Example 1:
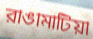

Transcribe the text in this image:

রাঙামাটিয়া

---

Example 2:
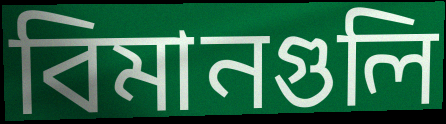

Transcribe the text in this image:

বিমানগুলি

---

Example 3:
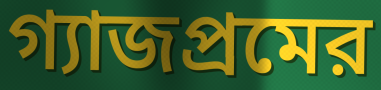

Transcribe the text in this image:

গ্যাজপ্রমের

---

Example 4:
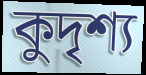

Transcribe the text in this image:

কুদৃশ্য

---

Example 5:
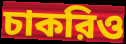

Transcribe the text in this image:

চাকরিও